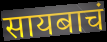
सायबाचं